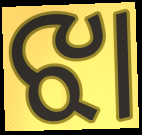
ଝା